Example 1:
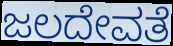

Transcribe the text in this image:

ಜಲದೇವತೆ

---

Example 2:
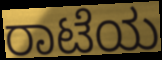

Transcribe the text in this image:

ರಾಟೆಯ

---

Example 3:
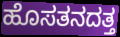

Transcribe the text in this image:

ಹೊಸತನದತ್ತ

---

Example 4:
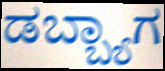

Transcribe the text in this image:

ಡಬ್ಬ್ಯಾಗ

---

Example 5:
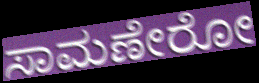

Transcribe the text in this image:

ಸಾಮಣೇರೋ